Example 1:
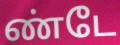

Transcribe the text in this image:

ண்டே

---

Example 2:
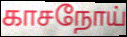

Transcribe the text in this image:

காசநோய்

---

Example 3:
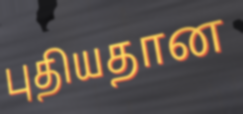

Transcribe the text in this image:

புதியதான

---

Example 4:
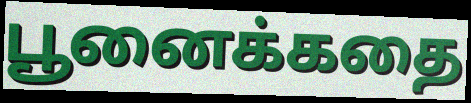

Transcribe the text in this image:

பூனைக்கதை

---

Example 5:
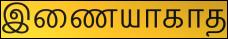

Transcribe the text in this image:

இணையாகாத